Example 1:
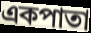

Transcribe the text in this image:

একপাতা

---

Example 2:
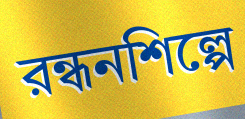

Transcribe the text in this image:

রন্ধনশিল্পে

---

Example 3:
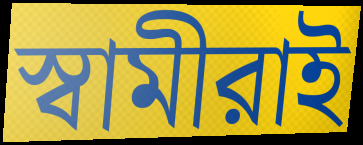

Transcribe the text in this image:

স্বামীরাই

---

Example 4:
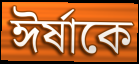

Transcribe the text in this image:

ঈর্ষাকে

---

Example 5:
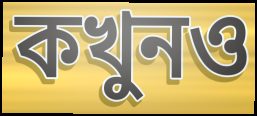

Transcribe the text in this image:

কখুনও